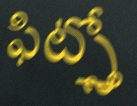
ఫిట్స్తో